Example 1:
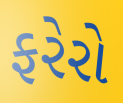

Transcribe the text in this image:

ફરેરો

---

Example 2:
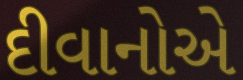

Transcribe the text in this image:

દીવાનોએ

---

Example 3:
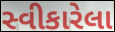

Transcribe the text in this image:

સ્વીકારેલા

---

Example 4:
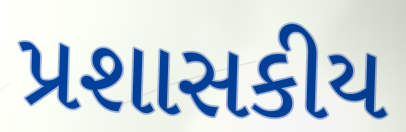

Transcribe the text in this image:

પ્રશાસકીય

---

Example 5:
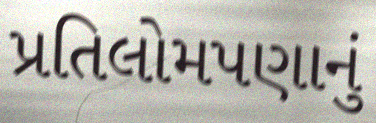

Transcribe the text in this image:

પ્રતિલોમપણાનું